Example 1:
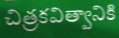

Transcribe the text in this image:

చిత్రకవిత్వానికి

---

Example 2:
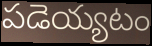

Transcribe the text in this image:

పడెయ్యటం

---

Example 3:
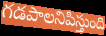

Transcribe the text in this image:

గడపాలనిపిస్తుంది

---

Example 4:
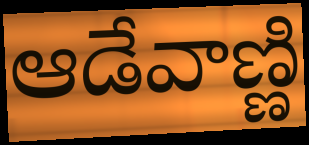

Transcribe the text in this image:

ఆడేవాణ్ణి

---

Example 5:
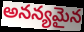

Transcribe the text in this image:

అనన్యమైన